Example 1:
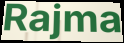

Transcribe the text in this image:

Rajma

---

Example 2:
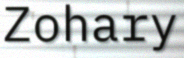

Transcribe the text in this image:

Zohary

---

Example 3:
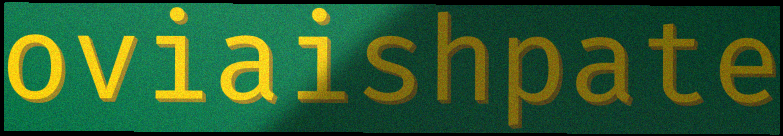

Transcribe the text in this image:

oviaishpate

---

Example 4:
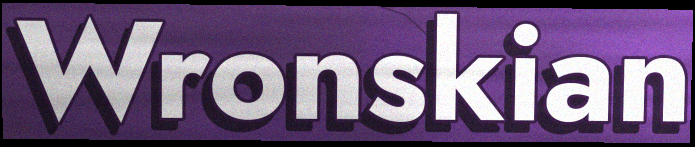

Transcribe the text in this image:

Wronskian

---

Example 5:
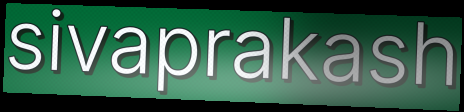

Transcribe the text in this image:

sivaprakash